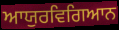
ਆਯੁਰਵਿਗਿਆਨ